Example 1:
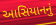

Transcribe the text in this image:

આસિયાનનું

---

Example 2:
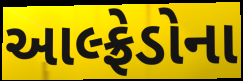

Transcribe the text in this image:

આલ્ફ્રેડોના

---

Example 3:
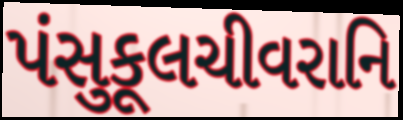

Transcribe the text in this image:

પંસુકૂલચીવરાનિ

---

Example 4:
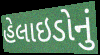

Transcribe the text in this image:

હેલાઇડોનું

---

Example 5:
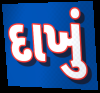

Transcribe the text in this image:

દાખું